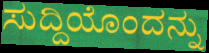
ಸುದ್ದಿಯೊಂದನ್ನು